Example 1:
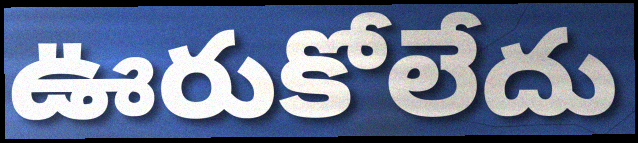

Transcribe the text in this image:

ఊరుకోలేదు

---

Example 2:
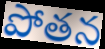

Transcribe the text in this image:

పోతన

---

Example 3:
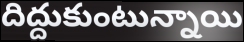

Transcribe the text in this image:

దిద్దుకుంటున్నాయి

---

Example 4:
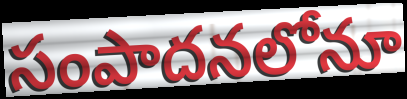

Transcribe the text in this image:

సంపాదనలోనూ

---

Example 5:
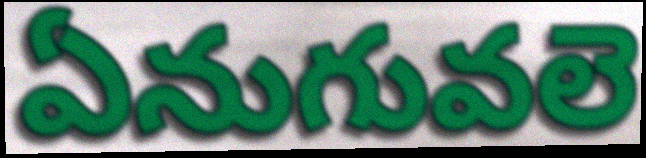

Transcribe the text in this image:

ఏనుగువలె